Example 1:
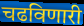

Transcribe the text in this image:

चढविणारी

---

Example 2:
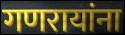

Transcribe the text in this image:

गणरायांना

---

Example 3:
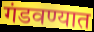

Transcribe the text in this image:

गंडवण्यात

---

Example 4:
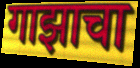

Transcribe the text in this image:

गाझाचा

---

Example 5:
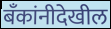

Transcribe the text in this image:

बँकांनीदेखील